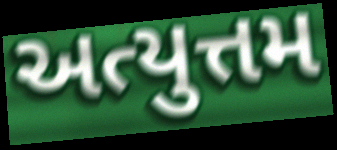
અત્યુત્તમ